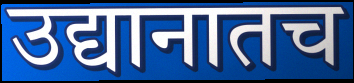
उद्यानातच